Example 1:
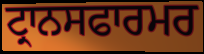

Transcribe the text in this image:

ਟ੍ਰਾਨਸਫਾਰਮਰ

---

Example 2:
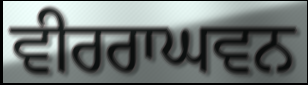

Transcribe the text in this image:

ਵੀਰਰਾਘਵਨ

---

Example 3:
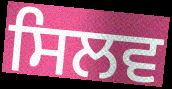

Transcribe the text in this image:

ਸਿਲਵ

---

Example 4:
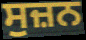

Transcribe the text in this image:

ਸੁਜ਼ਨ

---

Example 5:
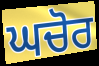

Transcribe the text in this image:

ਘਚੋਰ